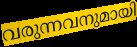
വരുന്നവനുമായി